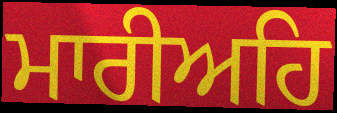
ਮਾਰੀਅਹਿ